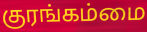
குரங்கம்மை